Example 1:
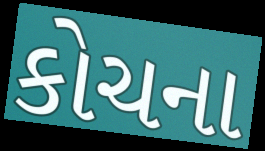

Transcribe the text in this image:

કોચના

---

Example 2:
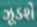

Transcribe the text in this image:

ઝૂડશે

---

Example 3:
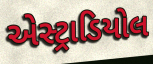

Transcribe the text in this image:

એસ્ટ્રાડિયોલ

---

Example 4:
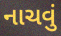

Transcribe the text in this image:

નાચવું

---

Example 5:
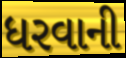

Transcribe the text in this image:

ધરવાની